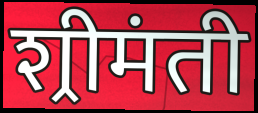
श्रीमंती